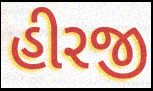
હીરજી